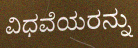
ವಿಧವೆಯರನ್ನು